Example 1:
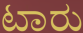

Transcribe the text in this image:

ಟಾರು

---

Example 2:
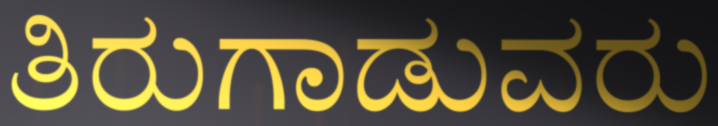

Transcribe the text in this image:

ತಿರುಗಾಡುವರು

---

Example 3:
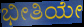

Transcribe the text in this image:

ಭೀತಿಯೇ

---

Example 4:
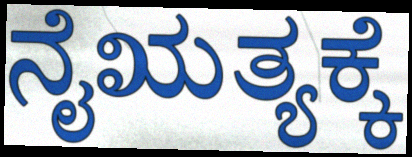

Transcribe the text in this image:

ನೈಋತ್ಯಕ್ಕೆ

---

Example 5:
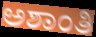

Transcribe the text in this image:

ಅಶಾಂತಿ